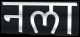
नला